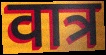
वात्र